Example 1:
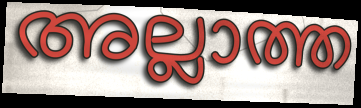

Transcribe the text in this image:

അല്ലാത്ത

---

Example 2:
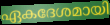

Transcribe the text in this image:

ഏകദേശമായി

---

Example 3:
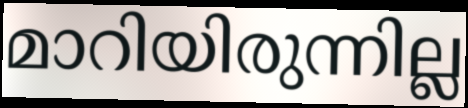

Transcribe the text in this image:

മാറിയിരുന്നില്ല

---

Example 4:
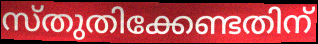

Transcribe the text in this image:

സ്തുതിക്കേണ്ടതിന്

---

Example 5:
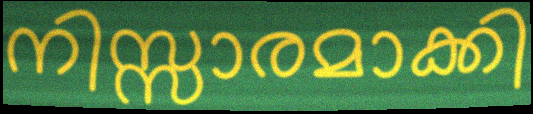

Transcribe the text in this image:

നിസ്സാരമാക്കി